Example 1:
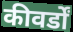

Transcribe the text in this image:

कीवर्डों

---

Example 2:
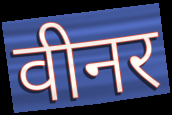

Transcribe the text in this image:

वीनर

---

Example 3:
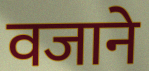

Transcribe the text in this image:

वजाने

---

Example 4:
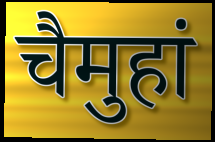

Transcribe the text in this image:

चैमुहां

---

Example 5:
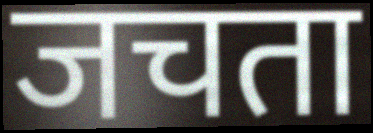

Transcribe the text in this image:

जचता